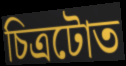
চিত্ৰটোত